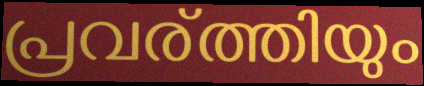
പ്രവര്ത്തിയും